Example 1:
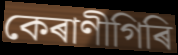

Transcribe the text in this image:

কেৰাণীগিৰি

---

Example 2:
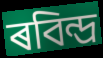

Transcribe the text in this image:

ৰবিন্দ্ৰ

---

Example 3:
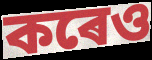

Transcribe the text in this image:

কৰেও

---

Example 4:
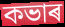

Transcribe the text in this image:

কভাৰ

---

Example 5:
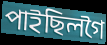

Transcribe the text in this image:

পাইছিলগৈ